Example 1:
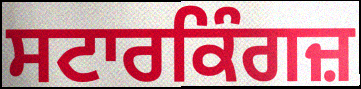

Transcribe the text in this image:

ਸਟਾਰਕਿੰਗਜ਼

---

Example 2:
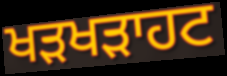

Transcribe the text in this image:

ਖੜਖੜਾਹਟ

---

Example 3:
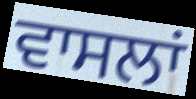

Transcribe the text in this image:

ਵਾਸਲਾਂ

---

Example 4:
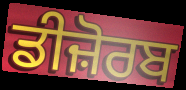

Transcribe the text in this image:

ਡੀਜ਼ੋਰਬ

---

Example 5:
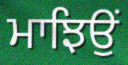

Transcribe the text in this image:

ਮਾਝਿਉਂ